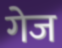
गेज